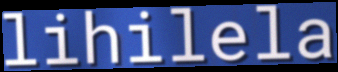
lihilela